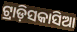
ଟ୍ରାଡ଼ିସକାସିଆ